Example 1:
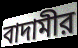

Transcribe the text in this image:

বাদামীর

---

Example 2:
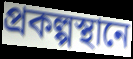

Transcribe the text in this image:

প্রকল্পস্থানে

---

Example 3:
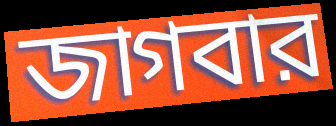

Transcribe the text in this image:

জাগবার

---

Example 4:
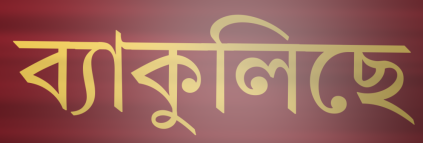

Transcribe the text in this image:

ব্যাকুলিছে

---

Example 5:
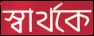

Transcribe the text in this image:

স্বার্থকে